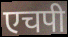
एचपी